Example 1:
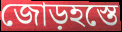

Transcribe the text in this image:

জোড়হস্তে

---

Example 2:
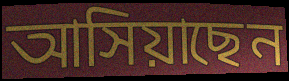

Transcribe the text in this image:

আসিয়াছেন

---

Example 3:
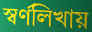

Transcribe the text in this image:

স্বর্ণলিখায়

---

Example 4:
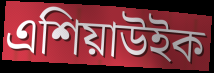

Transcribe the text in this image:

এশিয়াউইক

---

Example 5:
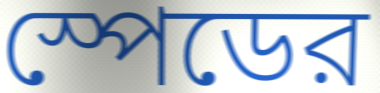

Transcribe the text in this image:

স্পেডের